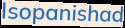
Isopanishad